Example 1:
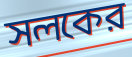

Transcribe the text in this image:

সলকের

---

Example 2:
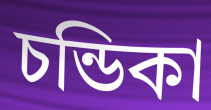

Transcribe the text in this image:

চন্ডিকা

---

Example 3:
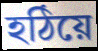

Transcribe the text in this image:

হঠিয়ে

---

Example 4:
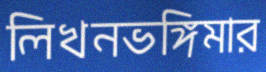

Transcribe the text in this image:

লিখনভঙ্গিমার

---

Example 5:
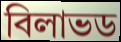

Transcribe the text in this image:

বিলাভড